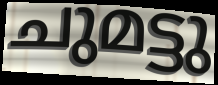
ചുമട്ടു